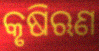
କୃଷିଋଣ